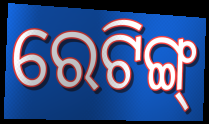
ରେଟିଙ୍ଗ୍